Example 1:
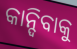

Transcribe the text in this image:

କାନ୍ଦିବାକୁ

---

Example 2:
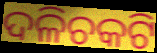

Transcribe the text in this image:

ଦଳିଚକଟି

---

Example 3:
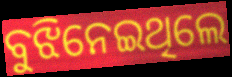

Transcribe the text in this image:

ବୁଝିନେଇଥିଲେ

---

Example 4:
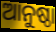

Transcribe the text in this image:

ଆନୁଷ୍ଠା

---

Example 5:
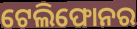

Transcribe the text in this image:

ଟେଲିଫୋନର